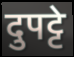
दुपट्टे